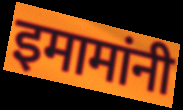
इमामांनी